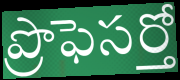
ప్రొఫెసర్తో